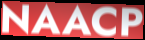
NAACP